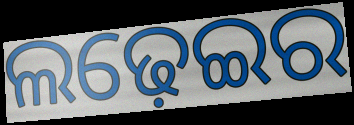
ଲଢ଼େଇର